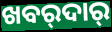
ଖବର୍‍ଦାର୍